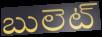
బులెట్